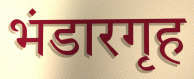
भंडारगृह